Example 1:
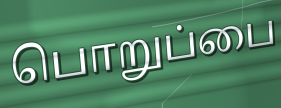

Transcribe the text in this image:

பொறுப்பை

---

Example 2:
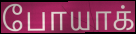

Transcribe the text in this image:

போயாக்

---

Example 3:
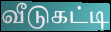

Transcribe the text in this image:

வீடுகட்டி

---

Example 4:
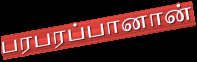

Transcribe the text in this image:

பரபரப்பானான்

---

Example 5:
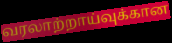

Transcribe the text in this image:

வரலாற்றாய்வுக்கான